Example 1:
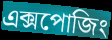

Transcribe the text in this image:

এক্সপোজিং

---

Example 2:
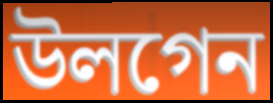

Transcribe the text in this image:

উলগেন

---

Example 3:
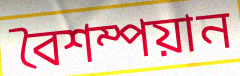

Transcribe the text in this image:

বৈশম্পয়ান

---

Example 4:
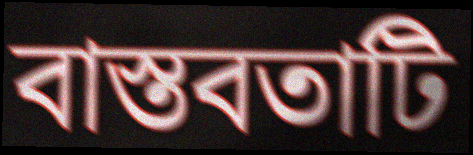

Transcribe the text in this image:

বাস্তবতাটি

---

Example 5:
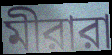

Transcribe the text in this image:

মীরারা